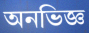
অনভিজ্ঞ